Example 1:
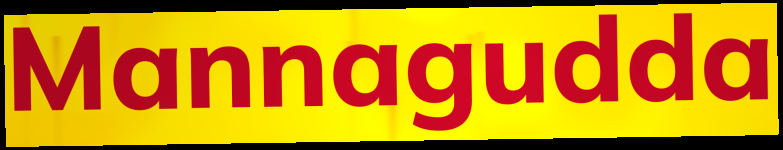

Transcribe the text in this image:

Mannagudda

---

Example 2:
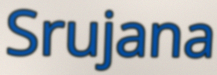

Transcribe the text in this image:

Srujana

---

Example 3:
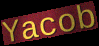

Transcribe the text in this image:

Yacob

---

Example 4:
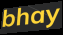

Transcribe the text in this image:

bhay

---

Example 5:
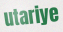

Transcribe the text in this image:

utariye